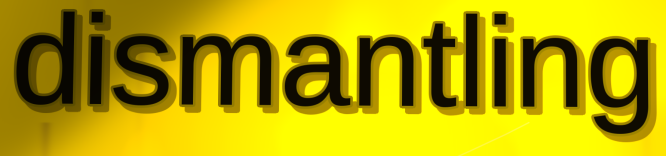
dismantling